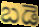
బడె